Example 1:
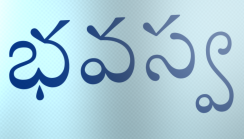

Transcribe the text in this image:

భవస్వ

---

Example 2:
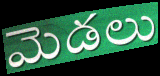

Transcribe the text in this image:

మెడలు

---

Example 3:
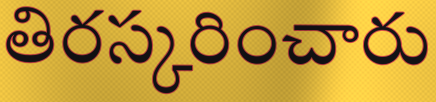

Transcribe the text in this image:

తిరస్కరించారు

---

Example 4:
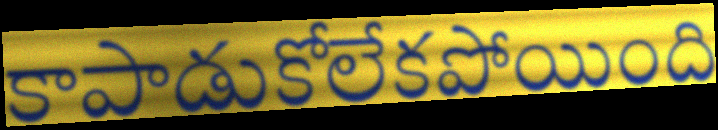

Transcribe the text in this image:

కాపాడుకోలేకపోయింది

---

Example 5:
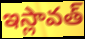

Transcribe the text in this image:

ఇస్లావత్